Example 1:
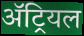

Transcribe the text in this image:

ॲट्रियल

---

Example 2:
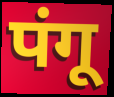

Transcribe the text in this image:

पंगू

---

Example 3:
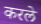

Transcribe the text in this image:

करले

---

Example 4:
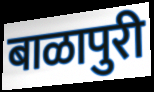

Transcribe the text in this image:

बाळापुरी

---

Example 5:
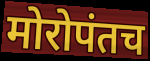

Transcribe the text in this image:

मोरोपंतच